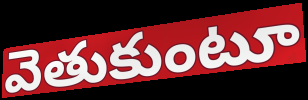
వెతుకుంటూ